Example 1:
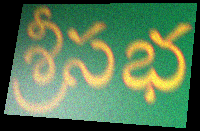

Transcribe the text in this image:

శ్రీసభ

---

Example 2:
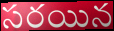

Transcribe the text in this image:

సరయిన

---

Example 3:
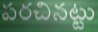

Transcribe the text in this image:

పరచినట్టు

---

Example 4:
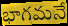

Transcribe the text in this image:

భాగమనే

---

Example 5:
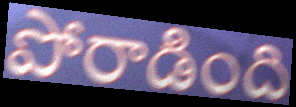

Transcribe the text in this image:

పోరాడింది